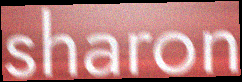
sharon